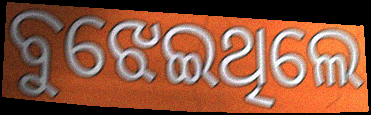
ବୁଝେଇଥିଲେ